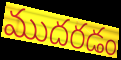
ముదరడం